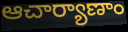
ఆచార్యాణాం